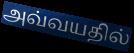
அவ்வயதில்